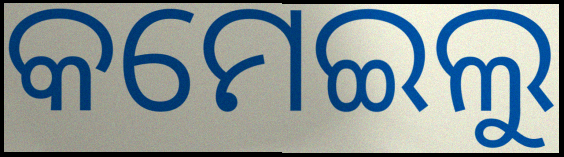
କମେଇଲୁ